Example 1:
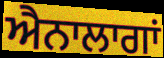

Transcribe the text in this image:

ਐਨਾਲਾਗਾਂ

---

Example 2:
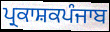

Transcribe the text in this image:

ਪ੍ਰਕਾਸ਼ਕਪੰਜਾਬ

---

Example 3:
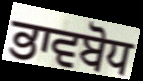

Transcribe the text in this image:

ਭਾਵਬੋਧ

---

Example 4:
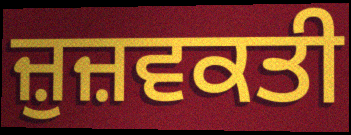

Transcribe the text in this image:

ਜ਼ੁਜ਼ਵਕਤੀ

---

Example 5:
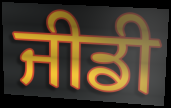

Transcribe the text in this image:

ਜੀਡੀ